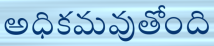
అధికమవుతోంది